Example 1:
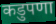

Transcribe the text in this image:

कडुपणा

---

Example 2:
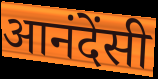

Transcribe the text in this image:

आनंदेंसी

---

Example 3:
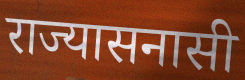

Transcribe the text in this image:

राज्यासनासी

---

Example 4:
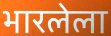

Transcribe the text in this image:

भारलेला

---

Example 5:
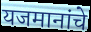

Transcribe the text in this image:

यजमानांचे